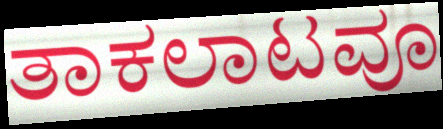
ತಾಕಲಾಟವೂ